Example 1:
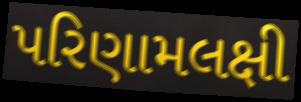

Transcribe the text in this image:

પરિણામલક્ષી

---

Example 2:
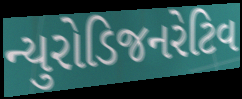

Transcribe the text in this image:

ન્યુરોડિજનરેટિવ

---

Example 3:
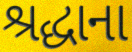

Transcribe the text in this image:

શ્રદ્ધાના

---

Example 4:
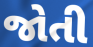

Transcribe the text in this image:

જોતી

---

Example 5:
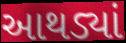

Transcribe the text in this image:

આથડ્યાં